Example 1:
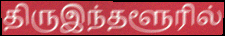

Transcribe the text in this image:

திருஇந்தளூரில்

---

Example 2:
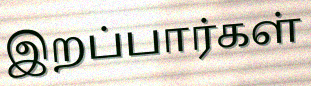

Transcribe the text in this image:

இறப்பார்கள்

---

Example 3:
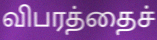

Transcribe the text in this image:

விபரத்தைச்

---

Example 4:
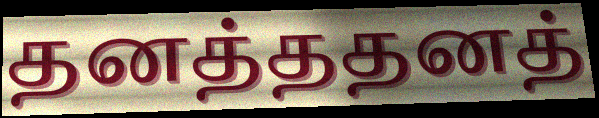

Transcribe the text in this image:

தனத்ததனத்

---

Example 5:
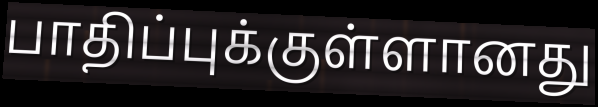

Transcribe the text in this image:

பாதிப்புக்குள்ளானது